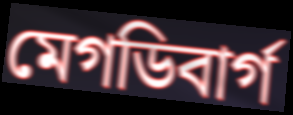
মেগডিবার্গ